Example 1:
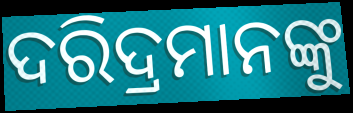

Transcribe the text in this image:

ଦରିଦ୍ରମାନଙ୍କୁ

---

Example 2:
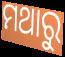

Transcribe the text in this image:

ମଥାରୁ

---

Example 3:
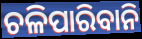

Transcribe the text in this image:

ଚଳିପାରିବାନି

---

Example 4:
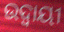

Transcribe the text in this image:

ଉଦ୍ବାୟୀ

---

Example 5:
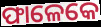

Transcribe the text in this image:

ଫାଳେକେ